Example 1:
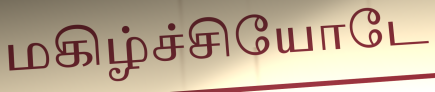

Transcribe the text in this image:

மகிழ்ச்சியோடே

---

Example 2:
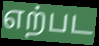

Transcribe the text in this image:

எற்பட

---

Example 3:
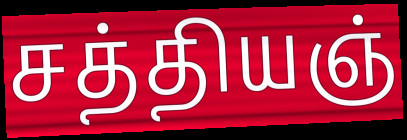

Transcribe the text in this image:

சத்தியஞ்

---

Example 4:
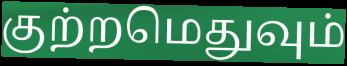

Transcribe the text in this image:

குற்றமெதுவும்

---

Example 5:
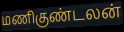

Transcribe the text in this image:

மணிகுண்டலன்